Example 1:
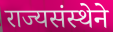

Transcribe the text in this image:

राज्यसंस्थेने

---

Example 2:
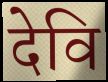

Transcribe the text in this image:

देवि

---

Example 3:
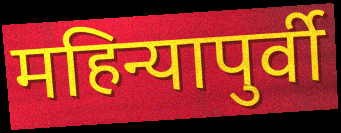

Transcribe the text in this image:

महिन्यापुर्वी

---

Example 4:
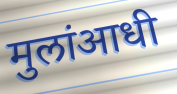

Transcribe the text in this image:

मुलांआधी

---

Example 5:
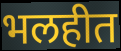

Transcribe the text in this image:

भलहीत